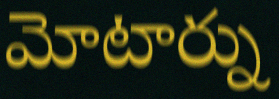
మోటార్ను